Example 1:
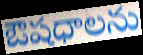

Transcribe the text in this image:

ఔషధాలను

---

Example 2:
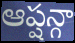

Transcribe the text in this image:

ఆప్షన్గా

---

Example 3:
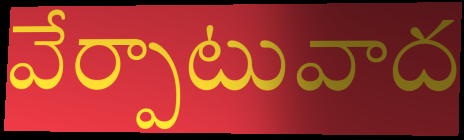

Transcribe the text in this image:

వేర్పాటువాద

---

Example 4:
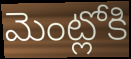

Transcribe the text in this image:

మెంట్లోకి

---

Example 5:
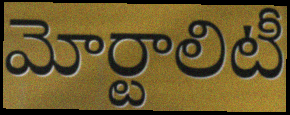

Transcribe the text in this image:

మోర్టాలిటీ